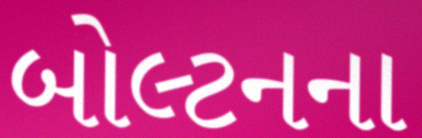
બોલ્ટનના